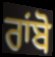
ਰਾਂਬੋ